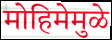
मोहिमेमुळे